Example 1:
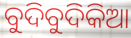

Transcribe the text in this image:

ବୁଦିବୁଦିକିଆ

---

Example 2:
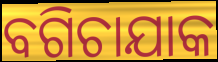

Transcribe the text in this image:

ବଗିଚାଯାକ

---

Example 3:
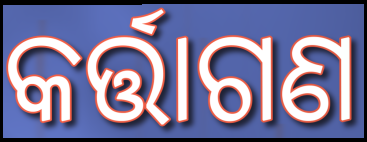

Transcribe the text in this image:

କର୍ତ୍ତାଗଣ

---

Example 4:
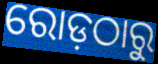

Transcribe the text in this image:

ରୋଡ଼ଠାରୁ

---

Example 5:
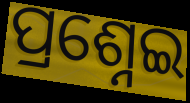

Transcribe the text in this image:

ପ୍ରଶ୍ନେଇ